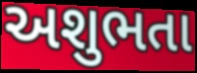
અશુભતા